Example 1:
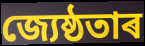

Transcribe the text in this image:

জ্যেষ্ঠতাৰ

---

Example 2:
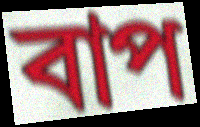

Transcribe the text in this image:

বাপ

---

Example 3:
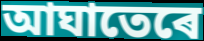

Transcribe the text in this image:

আঘাতেৰে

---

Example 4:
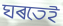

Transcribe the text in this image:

ঘৰতেই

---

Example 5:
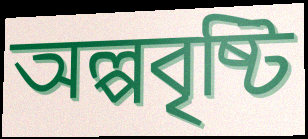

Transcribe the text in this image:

অল্পবৃষ্টি